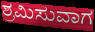
ಶ್ರಮಿಸುವಾಗ